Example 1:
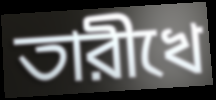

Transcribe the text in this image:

তারীখে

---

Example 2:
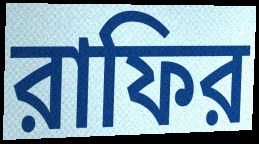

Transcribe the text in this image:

রাফির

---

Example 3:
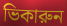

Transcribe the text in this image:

ভিকারুন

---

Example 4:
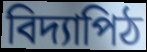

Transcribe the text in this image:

বিদ্যাপিঠ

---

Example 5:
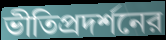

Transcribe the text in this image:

ভীতিপ্রদর্শনের